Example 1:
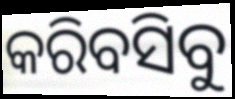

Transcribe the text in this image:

କରିବସିବୁ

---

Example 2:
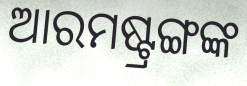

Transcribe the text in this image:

ଆରମଷ୍ଟ୍ରଙ୍ଗଙ୍କ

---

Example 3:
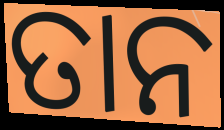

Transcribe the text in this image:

ତାନ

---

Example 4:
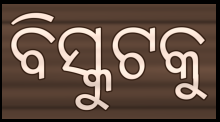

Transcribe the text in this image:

ବିସ୍କୁଟକୁ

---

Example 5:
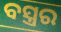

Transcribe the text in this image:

ବସ୍ତ୍ରର